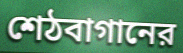
শেঠবাগানের